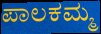
ಪಾಲಕಮ್ಮ